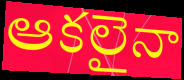
ఆకలైనా